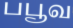
பபூவ